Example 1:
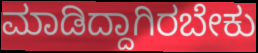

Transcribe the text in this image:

ಮಾಡಿದ್ದಾಗಿರಬೇಕು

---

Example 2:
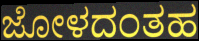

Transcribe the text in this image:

ಜೋಳದಂತಹ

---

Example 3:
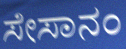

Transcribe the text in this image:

ಸೇಸಾನಂ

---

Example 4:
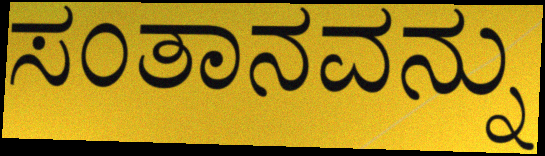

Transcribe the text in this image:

ಸಂತಾನವನ್ನು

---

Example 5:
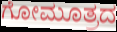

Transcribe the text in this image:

ಗೋಮೂತ್ರದ